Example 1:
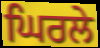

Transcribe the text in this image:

ਘਿਰਲੇ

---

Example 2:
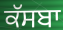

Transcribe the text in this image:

ਕੱਸਬਾ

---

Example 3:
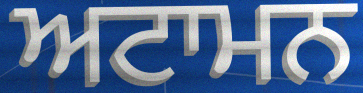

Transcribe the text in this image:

ਅਟਾਮਨ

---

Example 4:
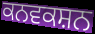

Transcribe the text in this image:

ਕਨਵਕਸ਼ਨ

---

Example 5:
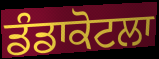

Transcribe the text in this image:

ਡੰਡਾਕੋਟਲਾ